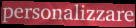
personalizzare